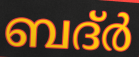
ബദ്ർ